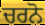
ਚਰਨੋ